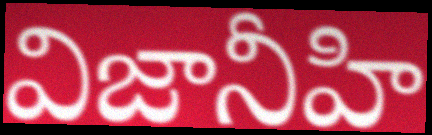
విజానీహి